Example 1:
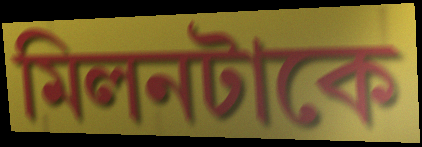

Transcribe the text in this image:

মিলনটাকে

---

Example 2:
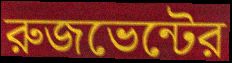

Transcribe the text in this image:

রুজভেন্টের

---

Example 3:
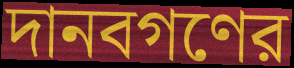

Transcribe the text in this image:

দানবগণের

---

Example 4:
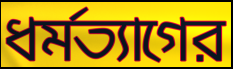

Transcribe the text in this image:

ধর্মত্যাগের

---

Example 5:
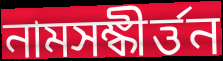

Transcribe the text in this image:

নামসঙ্কীর্ত্তন